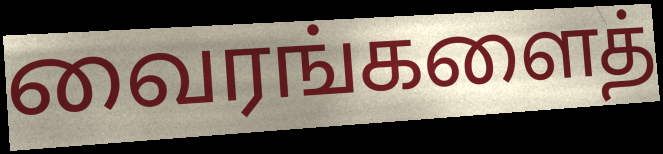
வைரங்களைத்